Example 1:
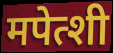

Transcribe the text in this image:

मपेत्शी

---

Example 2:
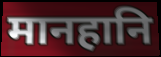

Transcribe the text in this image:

मानहानि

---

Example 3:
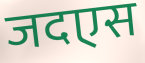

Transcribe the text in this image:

जदएस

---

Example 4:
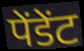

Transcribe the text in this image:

पेंडेंट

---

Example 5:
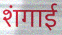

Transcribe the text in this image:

शंगाई